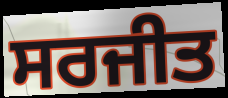
ਸਰਜੀਤ